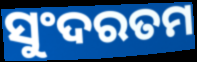
ସୁଂଦରତମ